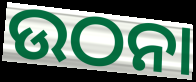
ଉଠନା